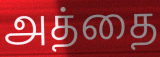
அத்தை